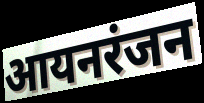
आयनरंजन